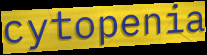
cytopenia